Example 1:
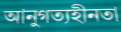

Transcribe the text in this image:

আনুগত্যহীনতা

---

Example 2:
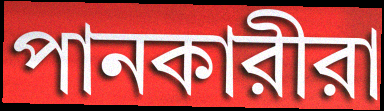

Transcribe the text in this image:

পানকারীরা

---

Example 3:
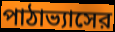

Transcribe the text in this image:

পাঠাভ্যাসের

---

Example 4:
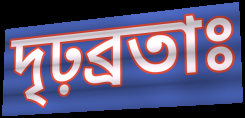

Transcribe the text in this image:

দৃঢ়ব্রতাঃ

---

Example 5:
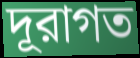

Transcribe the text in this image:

দূরাগত